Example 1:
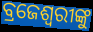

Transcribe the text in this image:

ବ୍ରଜେଶ୍ୱରୀଙ୍କୁ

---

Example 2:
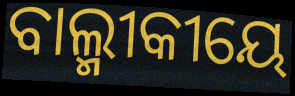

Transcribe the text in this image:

ବାଲ୍ମୀକୀୟେ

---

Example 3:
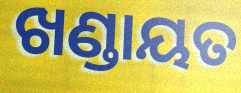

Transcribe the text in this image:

ଖଣ୍ଡାୟତ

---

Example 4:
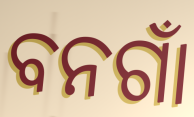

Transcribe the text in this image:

ବନଗାଁ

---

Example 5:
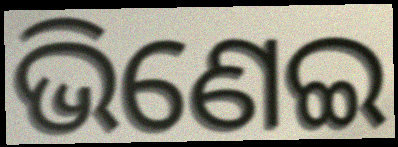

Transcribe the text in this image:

ଭିଣେଇ